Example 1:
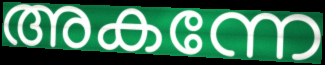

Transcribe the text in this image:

അകന്നേ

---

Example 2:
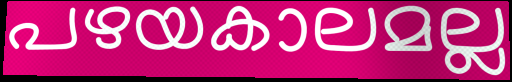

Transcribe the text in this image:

പഴയകാലമല്ല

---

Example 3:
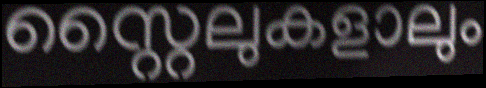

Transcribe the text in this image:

സ്റ്റൈലുകളാലും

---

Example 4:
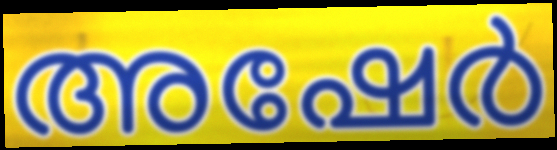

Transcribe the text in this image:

അഷേർ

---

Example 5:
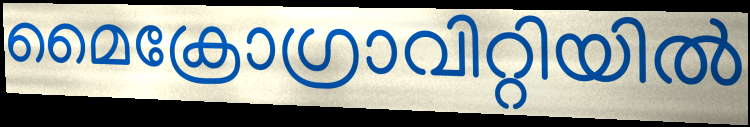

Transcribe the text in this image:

മൈക്രോഗ്രാവിറ്റിയിൽ